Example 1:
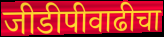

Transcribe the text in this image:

जीडीपीवाढीचा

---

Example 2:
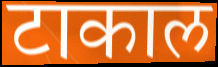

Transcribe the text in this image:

टाकाल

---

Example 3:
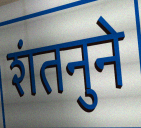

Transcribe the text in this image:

शंतनुने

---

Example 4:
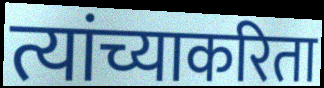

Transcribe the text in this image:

त्यांच्याकरिता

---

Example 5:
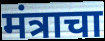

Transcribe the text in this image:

मंत्राचा